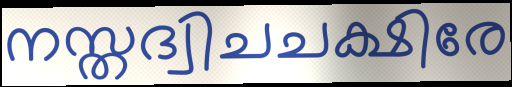
നസ്തദ്വിചചക്ഷിരേ